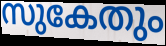
സുകേതും